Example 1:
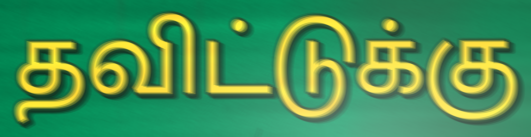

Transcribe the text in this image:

தவிட்டுக்கு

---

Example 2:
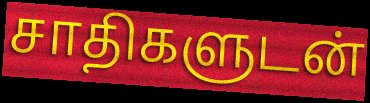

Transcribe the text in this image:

சாதிகளுடன்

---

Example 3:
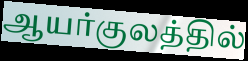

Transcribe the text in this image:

ஆயர்குலத்தில்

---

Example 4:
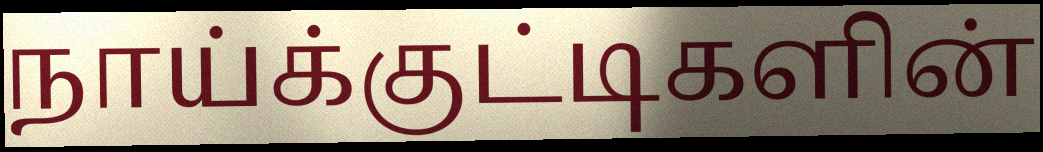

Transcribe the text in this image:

நாய்க்குட்டிகளின்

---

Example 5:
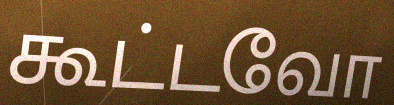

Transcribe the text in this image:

கூட்டவோ